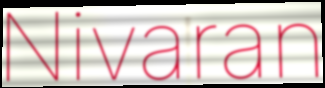
Nivaran